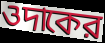
ওদাকের